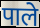
पाले